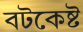
বটকেষ্ট